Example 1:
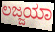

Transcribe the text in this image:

ಲಜ್ಜಯಾ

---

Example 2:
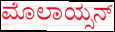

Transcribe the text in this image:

ಮೊಲಾಯ್ಸನ್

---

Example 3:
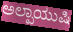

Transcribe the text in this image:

ಅಲ್ಪಾಯುಷಿ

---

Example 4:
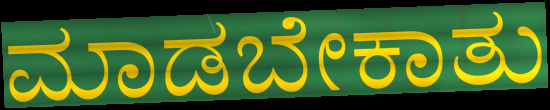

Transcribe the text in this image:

ಮಾಡಬೇಕಾತು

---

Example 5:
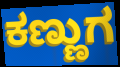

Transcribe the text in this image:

ಕಣ್ಣುಗ